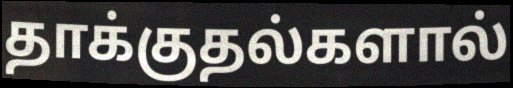
தாக்குதல்களால்